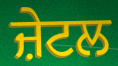
ਜ਼ੇਟਲ